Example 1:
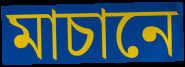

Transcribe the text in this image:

মাচানে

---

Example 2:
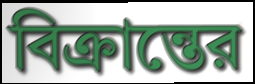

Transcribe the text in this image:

বিক্রান্তের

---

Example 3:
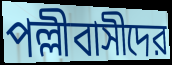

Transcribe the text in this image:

পল্লীবাসীদের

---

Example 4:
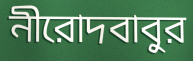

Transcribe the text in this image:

নীরোদবাবুর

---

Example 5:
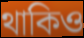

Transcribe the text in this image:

থাকিও